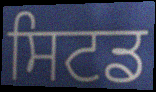
ਸਿਟਡ